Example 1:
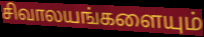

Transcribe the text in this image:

சிவாலயங்களையும்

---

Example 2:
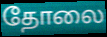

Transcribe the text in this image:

தோலை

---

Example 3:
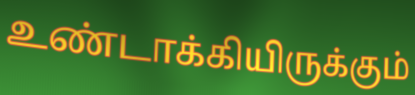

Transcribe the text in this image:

உண்டாக்கியிருக்கும்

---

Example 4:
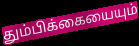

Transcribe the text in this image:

தும்பிக்கையையும்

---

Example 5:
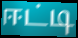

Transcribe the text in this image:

ஈட்டி